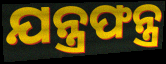
ଯନ୍ତ୍ରଫନ୍ତ୍ର